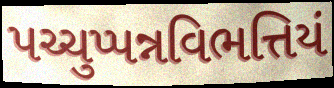
પચ્ચુપ્પન્નવિભત્તિયં